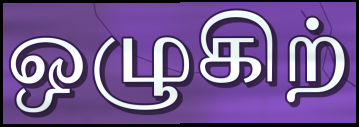
ஒழுகிற்